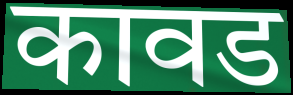
कावड